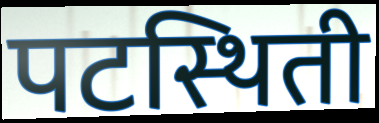
पटस्थिती